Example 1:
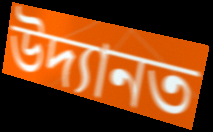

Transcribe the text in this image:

উদ্যানত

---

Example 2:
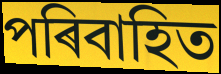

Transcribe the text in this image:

পৰিবাহিত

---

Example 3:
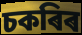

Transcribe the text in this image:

চকৰিৰ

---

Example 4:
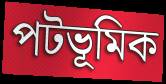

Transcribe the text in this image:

পটভূমিক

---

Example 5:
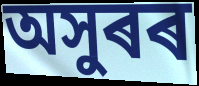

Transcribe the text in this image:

অসুৰৰ